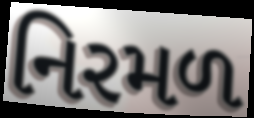
નિરમળ